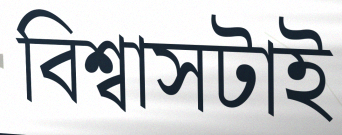
বিশ্বাসটাই